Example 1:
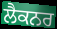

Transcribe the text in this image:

ਲੈਕਨਰ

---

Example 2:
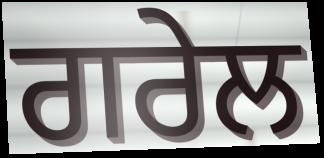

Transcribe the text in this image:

ਗਰੇਲ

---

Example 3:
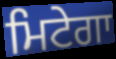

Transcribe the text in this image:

ਮਿਟੇਗਾ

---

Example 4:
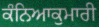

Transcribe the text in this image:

ਕੰਨਿਆਕੁਮਾਰੀ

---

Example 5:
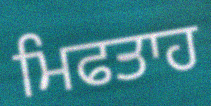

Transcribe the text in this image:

ਮਿਫਤਾਹ